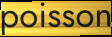
poisson